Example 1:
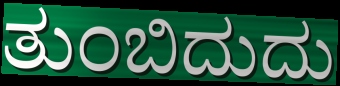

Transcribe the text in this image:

ತುಂಬಿದುದು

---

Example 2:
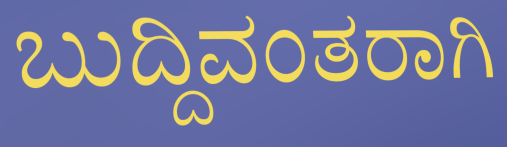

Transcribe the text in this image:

ಬುದ್ದಿವಂತರಾಗಿ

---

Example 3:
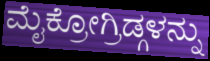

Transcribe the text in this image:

ಮೈಕ್ರೋಗ್ರಿಡ್ಗಳನ್ನು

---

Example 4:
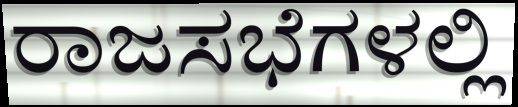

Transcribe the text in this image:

ರಾಜಸಭೆಗಳಲ್ಲಿ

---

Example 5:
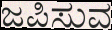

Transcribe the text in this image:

ಜಪಿಸುವ